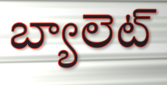
బ్యాలెట్